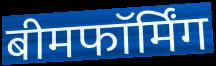
बीमफॉर्मिंग